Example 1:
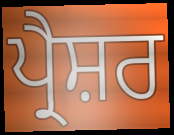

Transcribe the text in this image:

ਪ੍ਰੈਸ਼ਰ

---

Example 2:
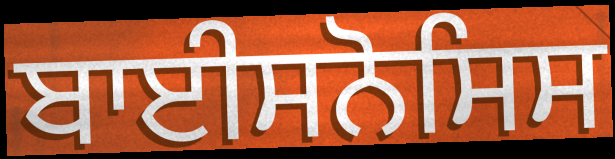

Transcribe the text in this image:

ਬਾਈਸਨੋਸਿਸ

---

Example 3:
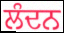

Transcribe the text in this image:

ਲੰਦਨ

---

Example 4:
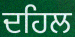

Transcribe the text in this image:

ਦਹਿਲ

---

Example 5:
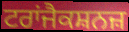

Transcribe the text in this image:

ਟਰਾਂਜੈਕਸ਼ਨਜ਼